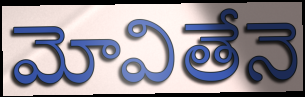
మోవితేనె